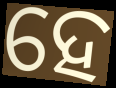
ହେ